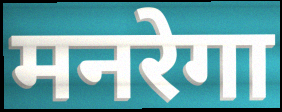
मनरेगा